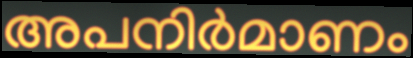
അപനിർമാണം